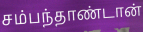
சம்பந்தாண்டான்